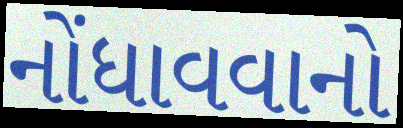
નોંધાવવાનો